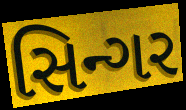
સિન્ગર